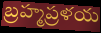
బ్రహ్మప్రళయ